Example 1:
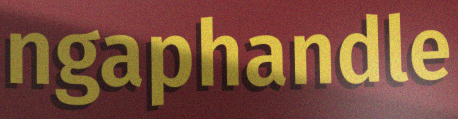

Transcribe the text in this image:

ngaphandle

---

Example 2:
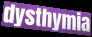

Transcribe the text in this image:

dysthymia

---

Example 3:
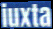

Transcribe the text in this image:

iuxta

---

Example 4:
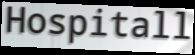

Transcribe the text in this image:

Hospitall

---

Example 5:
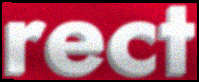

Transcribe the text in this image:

rect